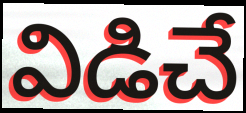
విడిచే